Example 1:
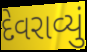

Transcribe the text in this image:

દેવરાવ્યું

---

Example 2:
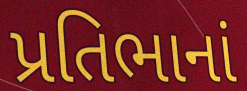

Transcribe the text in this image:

પ્રતિભાનાં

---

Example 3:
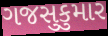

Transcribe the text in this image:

ગજસુકુમાર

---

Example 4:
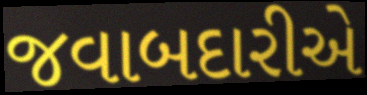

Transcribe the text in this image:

જવાબદારીએ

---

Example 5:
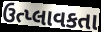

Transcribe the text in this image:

ઉત્પ્લાવકતા